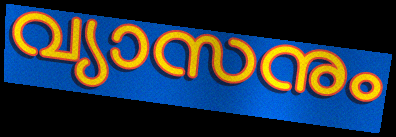
വ്യാസനും